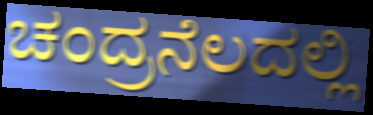
ಚಂದ್ರನೆಲದಲ್ಲಿ